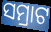
ସମ୍ରାଟ